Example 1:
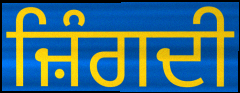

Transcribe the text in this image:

ਜ਼ਿੰਗਦੀ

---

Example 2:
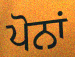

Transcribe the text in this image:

ਪੋਨਾਂ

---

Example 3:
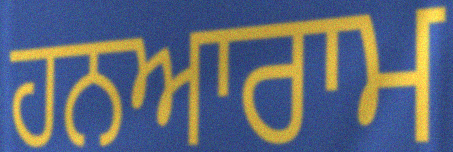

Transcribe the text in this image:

ਹਨਆਰਾਮ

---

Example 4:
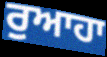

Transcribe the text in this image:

ਰੁਆਹਾ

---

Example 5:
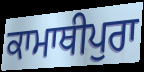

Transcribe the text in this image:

ਕਾਮਾਥੀਪੁਰਾ